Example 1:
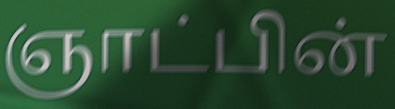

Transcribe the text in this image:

ஞாட்பின்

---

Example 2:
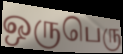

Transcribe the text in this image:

ஒருபெரு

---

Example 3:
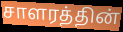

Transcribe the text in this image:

சாளரத்தின்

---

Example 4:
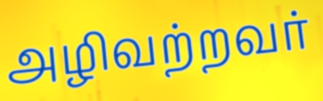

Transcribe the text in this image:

அழிவற்றவர்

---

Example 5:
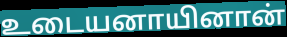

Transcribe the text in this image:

உடையனாயினான்